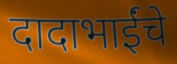
दादाभाईंचे